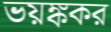
ভয়ঙ্ককর